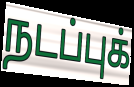
நடப்புக்